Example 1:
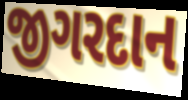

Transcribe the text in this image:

જીગરદાન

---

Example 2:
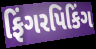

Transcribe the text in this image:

ફિંગરપિકિંગ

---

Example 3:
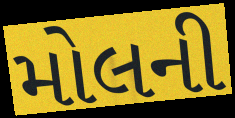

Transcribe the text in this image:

મોલની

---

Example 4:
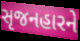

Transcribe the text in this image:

સૃજનહારને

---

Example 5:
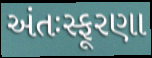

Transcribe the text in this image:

અંતઃસ્ફૂરણા